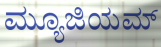
ಮ್ಯೂಜಿಯಮ್